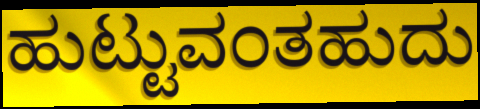
ಹುಟ್ಟುವಂತಹುದು